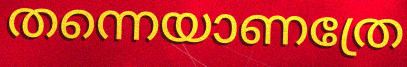
തന്നെയാണത്രേ